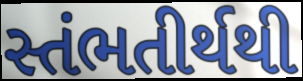
સ્તંભતીર્થથી